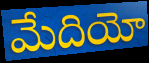
మేదియో